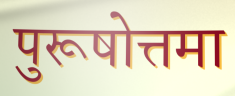
पुरूषोत्तमा